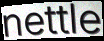
nettle